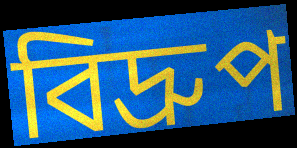
বিদ্রুপ